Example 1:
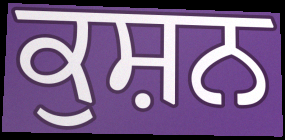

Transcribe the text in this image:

ਕੁਸ਼ਨ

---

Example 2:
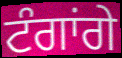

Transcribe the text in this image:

ਟੰਗਾਂਗੇ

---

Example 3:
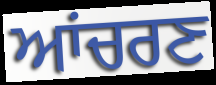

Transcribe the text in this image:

ਆਂਚਰਣ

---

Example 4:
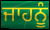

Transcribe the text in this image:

ਜਾਹਨੂੰ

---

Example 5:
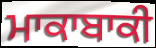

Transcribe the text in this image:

ਮਾਕਾਬਾਕੀ